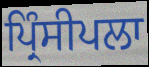
ਪ੍ਰਿੰਸੀਪਲਾ